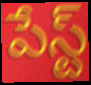
పేస్ట్